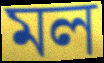
মল